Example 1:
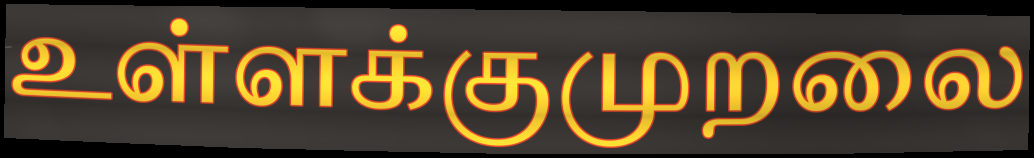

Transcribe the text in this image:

உள்ளக்குமுறலை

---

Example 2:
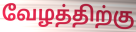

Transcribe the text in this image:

வேழத்திற்கு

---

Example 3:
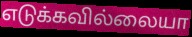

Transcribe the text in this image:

எடுக்கவில்லையா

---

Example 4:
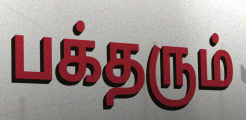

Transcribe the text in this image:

பக்தரும்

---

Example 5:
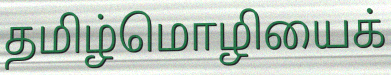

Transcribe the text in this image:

தமிழ்மொழியைக்